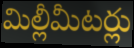
మిల్లీమీటర్లు